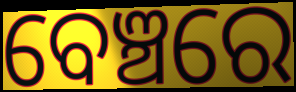
ବେଞ୍ଚରେ